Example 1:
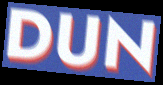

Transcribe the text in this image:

DUN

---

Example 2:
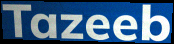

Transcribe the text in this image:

Tazeeb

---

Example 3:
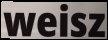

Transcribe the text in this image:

weisz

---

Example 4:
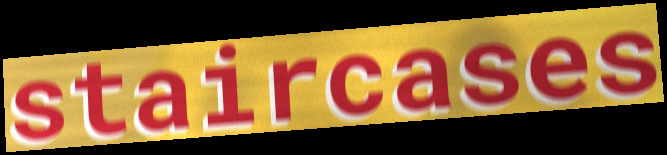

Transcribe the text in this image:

staircases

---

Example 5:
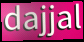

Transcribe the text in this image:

dajjal